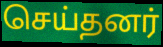
செய்தனர்